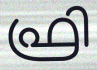
ഫ്രി